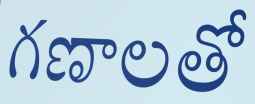
గణాలతో